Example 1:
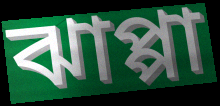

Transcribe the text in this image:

ঝাপ্পা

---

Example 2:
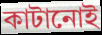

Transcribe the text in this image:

কাটানোই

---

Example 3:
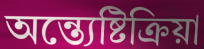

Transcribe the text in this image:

অন্ত্যেষ্টিক্রিয়া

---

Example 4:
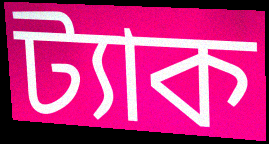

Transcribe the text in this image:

ট্যাক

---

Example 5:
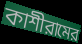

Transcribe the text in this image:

কাশীরামের